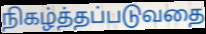
நிகழ்த்தப்படுவதை